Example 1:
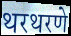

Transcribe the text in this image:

थरथरणे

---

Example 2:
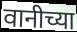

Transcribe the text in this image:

वानीच्या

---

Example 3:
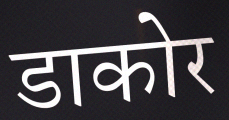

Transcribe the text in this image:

डाकोर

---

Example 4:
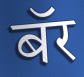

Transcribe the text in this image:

बॅर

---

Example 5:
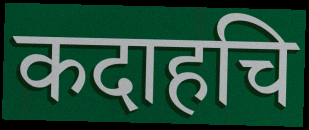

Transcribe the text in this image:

कदाहचि